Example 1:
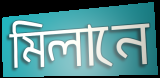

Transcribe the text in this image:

মিলানে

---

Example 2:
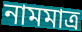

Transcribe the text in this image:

নামমাত্র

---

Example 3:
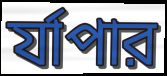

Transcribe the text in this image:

র্যাপার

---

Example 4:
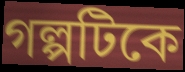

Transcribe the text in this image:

গল্পটিকে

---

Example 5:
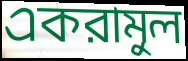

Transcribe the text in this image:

একরামুল